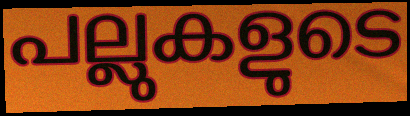
പല്ലുകളുടെ